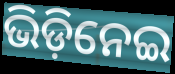
ଭିଡ଼ିନେଇ